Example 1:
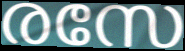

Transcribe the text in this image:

രസേ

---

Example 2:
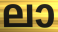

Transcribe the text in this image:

ലാ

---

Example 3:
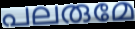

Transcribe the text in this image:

പലരുമേ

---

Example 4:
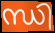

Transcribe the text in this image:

ന്ധി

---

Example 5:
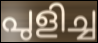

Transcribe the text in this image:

പുളിച്ച